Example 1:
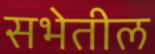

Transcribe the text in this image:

सभेतील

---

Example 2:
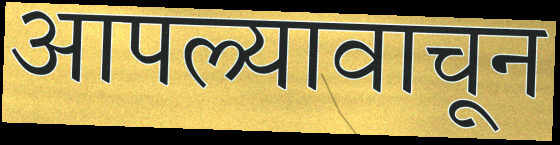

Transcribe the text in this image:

आपल्यावाचून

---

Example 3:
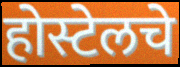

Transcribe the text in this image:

होस्टेलचे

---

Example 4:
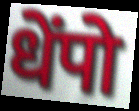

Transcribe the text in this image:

धेंपो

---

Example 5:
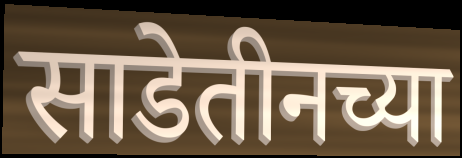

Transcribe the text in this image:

साडेतीनच्या